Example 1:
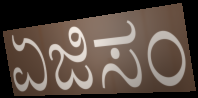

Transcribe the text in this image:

ಏಜಿಸಂ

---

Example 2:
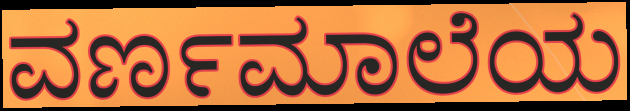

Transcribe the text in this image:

ವರ್ಣಮಾಲೆಯ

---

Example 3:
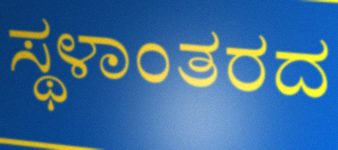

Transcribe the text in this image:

ಸ್ಥಳಾಂತರದ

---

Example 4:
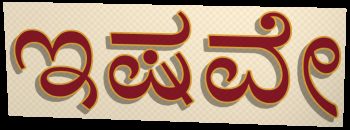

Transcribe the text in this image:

ಇಷವೇ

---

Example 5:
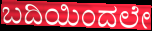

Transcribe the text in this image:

ಬದಿಯಿಂದಲೇ